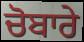
ਚੋਬਾਰੇ